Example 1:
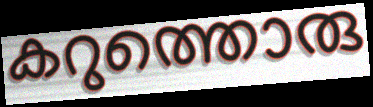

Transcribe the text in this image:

കറുത്തൊരു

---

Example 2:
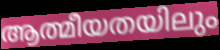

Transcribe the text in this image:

ആത്മീയതയിലും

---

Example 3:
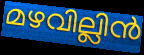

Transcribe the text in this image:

മഴവില്ലിൻ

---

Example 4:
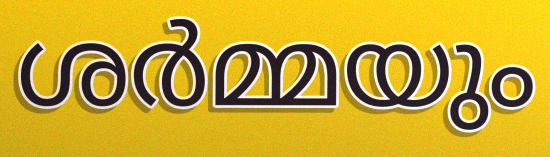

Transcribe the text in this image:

ശർമ്മയും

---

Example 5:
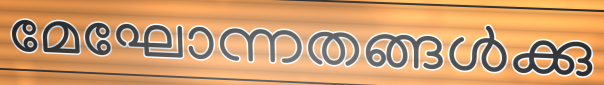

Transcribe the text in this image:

മേഘോന്നതങ്ങൾക്കു